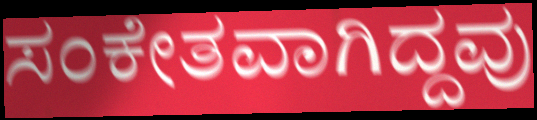
ಸಂಕೇತವಾಗಿದ್ದವು